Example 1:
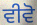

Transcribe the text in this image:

ਵੀਵੋ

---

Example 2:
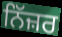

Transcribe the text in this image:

ਨਿੱਜ਼ਰ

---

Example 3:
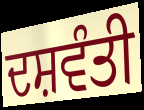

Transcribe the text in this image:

ਦਸ਼ਵੰਤੀ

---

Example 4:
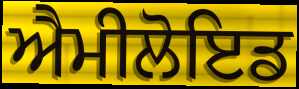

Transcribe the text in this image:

ਐਮੀਲੋਇਡ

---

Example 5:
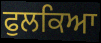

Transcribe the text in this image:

ਫੁਲਕਿਆ